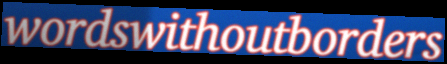
wordswithoutborders